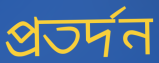
প্রতর্দন